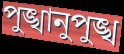
পুঙ্খানুপুঙ্খ